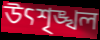
উৎশৃঙ্খল